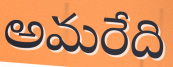
అమరేది